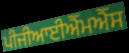
ਪੀਜੀਆਈਐੱਮਐੱਸ